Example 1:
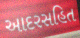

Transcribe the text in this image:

આદરસહિત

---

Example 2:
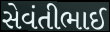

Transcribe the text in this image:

સેવંતીભાઈ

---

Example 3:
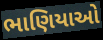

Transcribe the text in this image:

ભાણિયાઓ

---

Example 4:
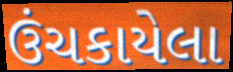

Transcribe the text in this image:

ઉંચકાયેલા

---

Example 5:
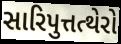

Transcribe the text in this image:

સારિપુત્તત્થેરો